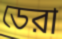
ডেরা